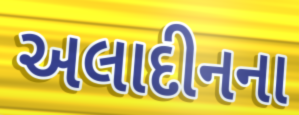
અલાદીનના